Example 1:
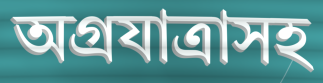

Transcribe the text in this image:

অগ্রযাত্রাসহ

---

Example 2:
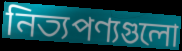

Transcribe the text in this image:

নিত্যপণ্যগুলো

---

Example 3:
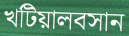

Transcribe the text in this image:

খটিয়ালবসান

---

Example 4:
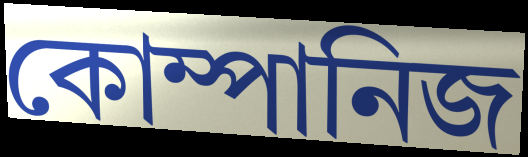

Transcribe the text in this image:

কোম্পানিজ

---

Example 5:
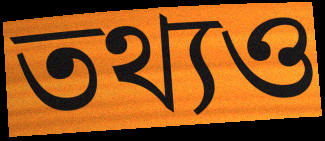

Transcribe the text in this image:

তথ্যও